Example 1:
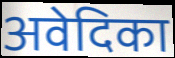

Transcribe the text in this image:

अवेदिका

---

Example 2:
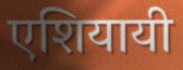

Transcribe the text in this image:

एशियायी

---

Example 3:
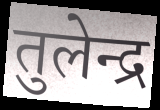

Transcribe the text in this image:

तुलेन्द्र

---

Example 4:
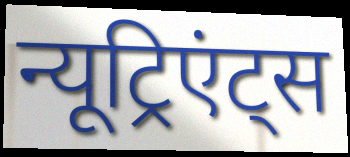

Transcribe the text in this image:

न्यूट्रिएंट्स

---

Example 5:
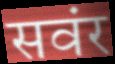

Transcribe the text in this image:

सवंर